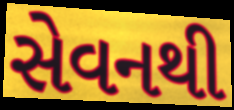
સેવનથી